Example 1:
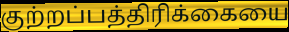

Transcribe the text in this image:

குற்றப்பத்திரிக்கையை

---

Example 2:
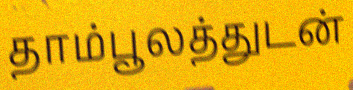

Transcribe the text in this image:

தாம்பூலத்துடன்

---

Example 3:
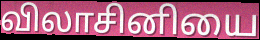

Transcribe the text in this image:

விலாசினியை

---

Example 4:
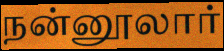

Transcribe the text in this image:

நன்னூலார்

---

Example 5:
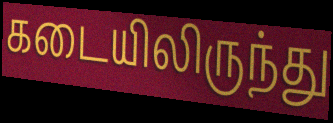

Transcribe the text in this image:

கடையிலிருந்து